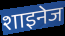
शाइनेज